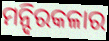
ମନ୍ଦିରକଳାର